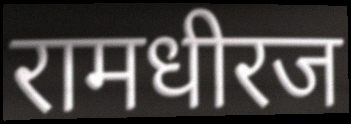
रामधीरज